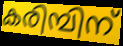
കരിമ്പിന്